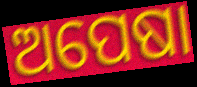
ଅପେଷା